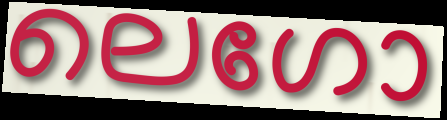
ലെഗോ